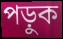
পড়ুক